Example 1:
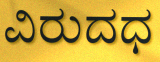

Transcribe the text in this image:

ವಿರುದಧ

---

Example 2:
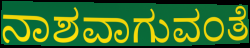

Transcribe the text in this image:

ನಾಶವಾಗುವಂತೆ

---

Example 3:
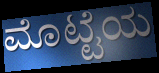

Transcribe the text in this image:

ಮೊಟ್ಟೆಯ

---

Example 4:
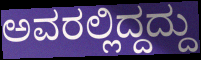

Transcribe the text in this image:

ಅವರಲ್ಲಿದ್ದದ್ದು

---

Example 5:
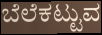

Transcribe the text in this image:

ಬೆಲೆಕಟ್ಟುವ